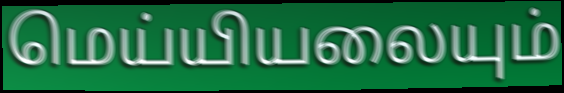
மெய்யியலையும்